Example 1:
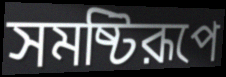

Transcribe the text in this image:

সমষ্টিরূপে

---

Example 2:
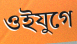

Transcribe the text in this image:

ওইযুগে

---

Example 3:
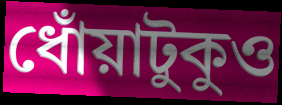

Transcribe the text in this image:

ধোঁয়াটুকুও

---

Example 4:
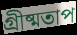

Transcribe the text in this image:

গ্রীষ্মতাপ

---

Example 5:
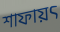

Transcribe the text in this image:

শাফায়ৎ